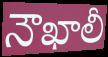
నౌఖాలీ